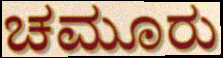
ಚಮೂರು